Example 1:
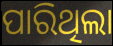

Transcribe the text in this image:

ପାରିଥିଲା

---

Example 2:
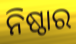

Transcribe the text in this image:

ନିଷ୍ଠାର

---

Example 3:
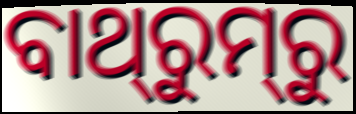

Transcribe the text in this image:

ବାଥ୍‌ରୁମ୍‌ରୁ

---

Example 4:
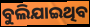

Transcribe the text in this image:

ବୁଲିଯାଇଥିବ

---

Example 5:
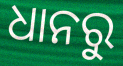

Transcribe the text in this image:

ଧାନରୁ